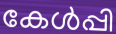
കേൾപ്പി